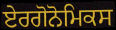
ਏਰਗੋਨੋਮਿਕਸ